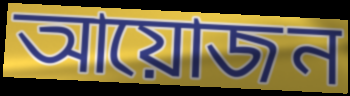
আয়োজন